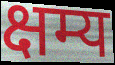
क्षम्य